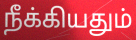
நீக்கியதும்